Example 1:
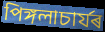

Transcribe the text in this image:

পিঙ্গলাচাৰ্যৰ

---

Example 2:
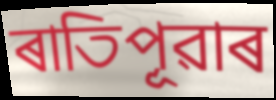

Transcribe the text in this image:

ৰাতিপূৱাৰ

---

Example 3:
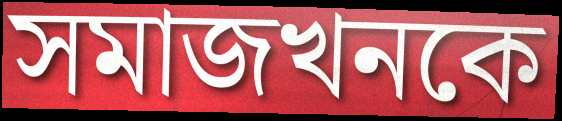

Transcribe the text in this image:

সমাজখনকে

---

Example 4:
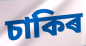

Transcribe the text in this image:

চাকিৰ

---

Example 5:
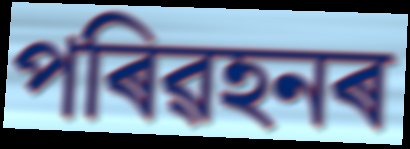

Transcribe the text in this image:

পৰিৱহনৰ